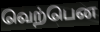
வெற்பென